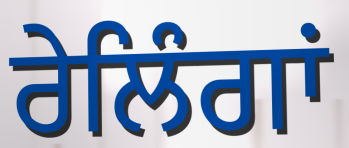
ਰੇਲਿੰਗਾਂ